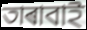
তাৰাবাই